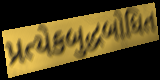
પ્રત્યેકબુદ્ધબોધિત